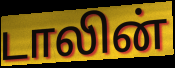
டாலின்